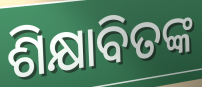
ଶିକ୍ଷାବିତଙ୍କ